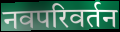
नवपरिवर्तन